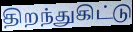
திறந்துகிட்டு